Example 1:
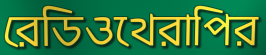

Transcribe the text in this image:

রেডিওথেরাপির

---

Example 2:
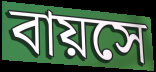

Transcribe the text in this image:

বায়সে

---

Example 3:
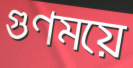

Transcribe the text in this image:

গুণময়ে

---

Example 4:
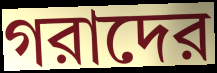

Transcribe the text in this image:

গরাদের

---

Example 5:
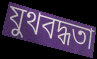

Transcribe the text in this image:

যুথবদ্ধতা